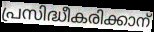
പ്രസിദ്ധീകരിക്കാന്